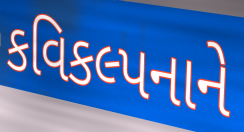
કવિકલ્પનાને